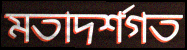
মতাদৰ্শগত